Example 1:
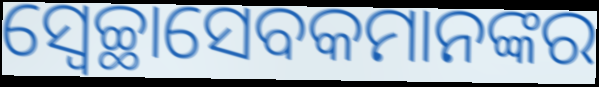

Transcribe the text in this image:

ସ୍ୱେଚ୍ଛାସେବକମାନଙ୍କର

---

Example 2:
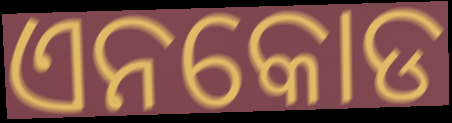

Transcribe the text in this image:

ଏନକୋଡ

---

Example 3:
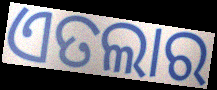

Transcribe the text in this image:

ଏତଲାର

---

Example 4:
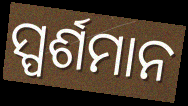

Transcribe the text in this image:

ସ୍ପର୍ଶମାନ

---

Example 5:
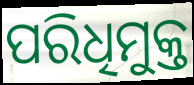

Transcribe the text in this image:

ପରିଧିମୁକ୍ତ